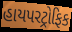
હાયપરટ્રોફિક